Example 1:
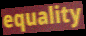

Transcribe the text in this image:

equality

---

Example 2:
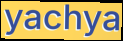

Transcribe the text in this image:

yachya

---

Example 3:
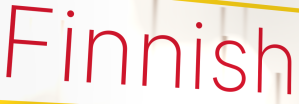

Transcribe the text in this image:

Finnish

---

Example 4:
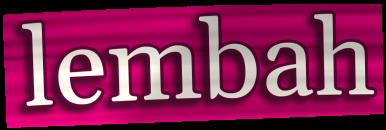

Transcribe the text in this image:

lembah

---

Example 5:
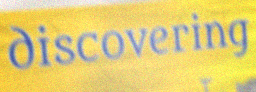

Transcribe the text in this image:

discovering